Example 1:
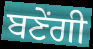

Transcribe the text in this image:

ਬਣੇਂਗੀ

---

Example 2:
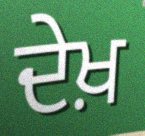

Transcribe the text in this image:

ਦੇਖ਼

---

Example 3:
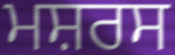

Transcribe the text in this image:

ਮਸ਼ਰਸ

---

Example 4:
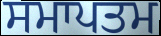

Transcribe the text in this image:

ਸਮਾਪਤਮ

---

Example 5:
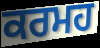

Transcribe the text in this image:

ਕਰਮਹ